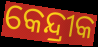
କେନ୍ଦ୍ରୀକ